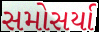
સમોસર્યા